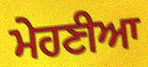
ਮੇਹਣੀਆ